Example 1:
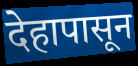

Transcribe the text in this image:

देहापासून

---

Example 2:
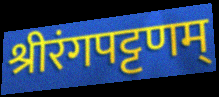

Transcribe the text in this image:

श्रीरंगपट्टणम्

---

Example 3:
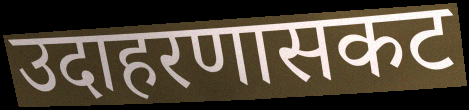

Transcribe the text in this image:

उदाहरणासकट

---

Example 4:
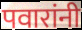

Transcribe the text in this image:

पवारांनी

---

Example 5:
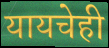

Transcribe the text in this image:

यायचेही